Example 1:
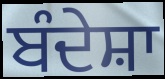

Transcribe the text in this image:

ਬੰਦੇਸ਼ਾ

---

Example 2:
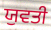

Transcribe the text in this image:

ਯੁਵਤੀ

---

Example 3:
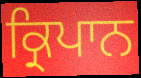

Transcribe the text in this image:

ਕ੍ਰਿਪਾਨ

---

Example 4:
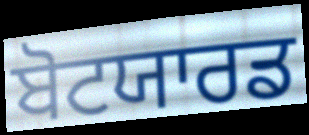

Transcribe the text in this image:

ਬੋਟਯਾਰਡ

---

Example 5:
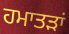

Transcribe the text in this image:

ਹਮਾਤੜਾਂ